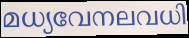
മധ്യവേനലവധി